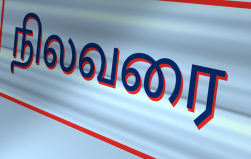
நிலவரை